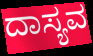
ದಾಸ್ಯವ